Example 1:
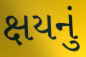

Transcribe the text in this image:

ક્ષયનું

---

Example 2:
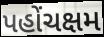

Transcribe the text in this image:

પહોંચક્ષમ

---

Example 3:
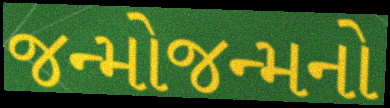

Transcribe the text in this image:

જન્મોજન્મનો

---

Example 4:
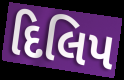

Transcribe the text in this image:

દિલિપ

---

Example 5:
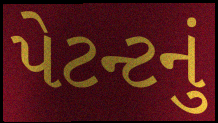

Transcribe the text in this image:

પેટન્ટનું